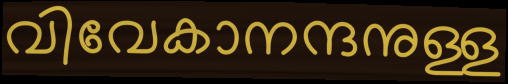
വിവേകാനന്ദനുള്ള